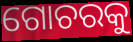
ଗୋଚରକୁ